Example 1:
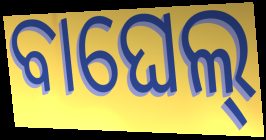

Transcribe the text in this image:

ବାଘେଲ୍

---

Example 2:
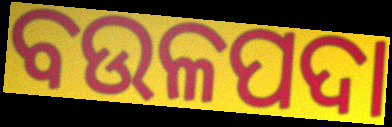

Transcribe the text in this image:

ବଉଳପଦା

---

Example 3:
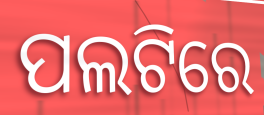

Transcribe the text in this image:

ପଲଟିରେ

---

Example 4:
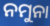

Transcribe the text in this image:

ନମୁନା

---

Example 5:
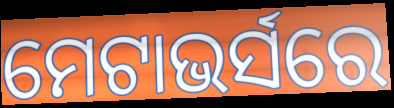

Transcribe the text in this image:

ମେଟାଭର୍ସରେ